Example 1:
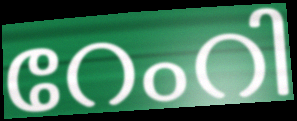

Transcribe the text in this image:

റേംറി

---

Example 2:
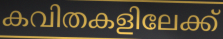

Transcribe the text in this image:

കവിതകളിലേക്ക്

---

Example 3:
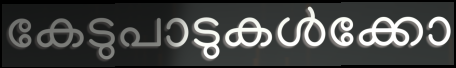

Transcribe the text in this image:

കേടുപാടുകൾക്കോ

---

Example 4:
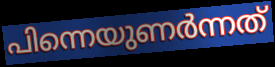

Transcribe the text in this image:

പിന്നെയുണർന്നത്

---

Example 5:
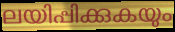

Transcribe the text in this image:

ലയിപ്പിക്കുകയും